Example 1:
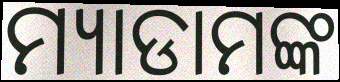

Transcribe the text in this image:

ମ୍ୟାଡାମଙ୍କ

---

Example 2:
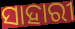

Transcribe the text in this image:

ସାହାରୀ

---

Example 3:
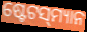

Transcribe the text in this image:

ଷ୍ଟେଟସ୍‌ମ୍ୟାନ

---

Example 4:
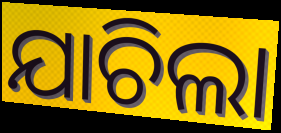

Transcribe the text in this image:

ଯାଚିଲା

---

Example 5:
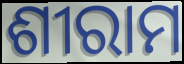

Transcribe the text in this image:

ଶୀରାମ